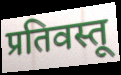
प्रतिवस्तू